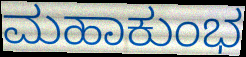
ಮಹಾಕುಂಭ